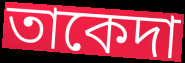
তাকেদা